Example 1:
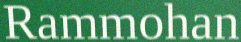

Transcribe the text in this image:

Rammohan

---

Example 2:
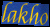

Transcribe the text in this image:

lakho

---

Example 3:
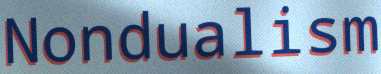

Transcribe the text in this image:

Nondualism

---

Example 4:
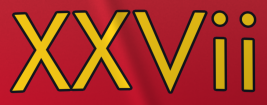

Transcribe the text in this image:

XXVii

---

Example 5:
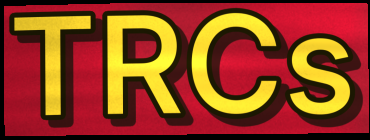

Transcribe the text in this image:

TRCs